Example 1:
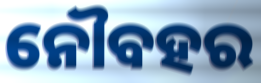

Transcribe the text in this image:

ନୌବହର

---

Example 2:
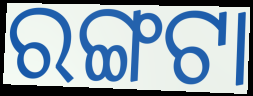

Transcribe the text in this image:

ରଙ୍ଗଟା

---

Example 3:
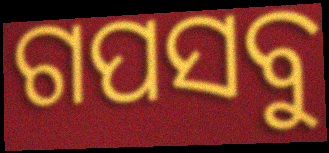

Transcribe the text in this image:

ଗପସବୁ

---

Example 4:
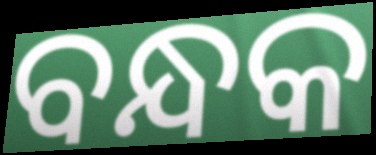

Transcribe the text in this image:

ବନ୍ଧକ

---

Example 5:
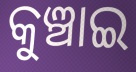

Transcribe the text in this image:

କୁଞ୍ଚାଇ